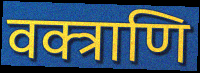
वक्त्राणि